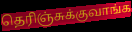
தெரிஞ்சுக்குவாங்க